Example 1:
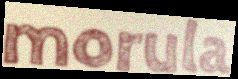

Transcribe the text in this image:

morula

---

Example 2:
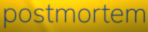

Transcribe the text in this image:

postmortem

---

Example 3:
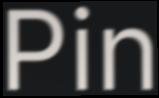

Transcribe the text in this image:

Pin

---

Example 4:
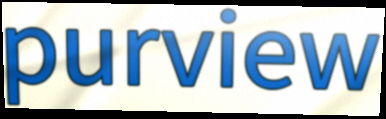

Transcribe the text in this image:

purview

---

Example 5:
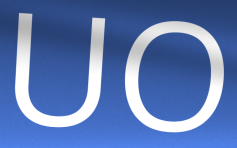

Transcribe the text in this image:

UO